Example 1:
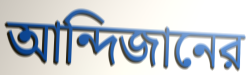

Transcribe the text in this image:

আন্দিজানের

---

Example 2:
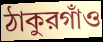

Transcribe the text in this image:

ঠাকুরগাঁও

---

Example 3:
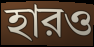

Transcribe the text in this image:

হারও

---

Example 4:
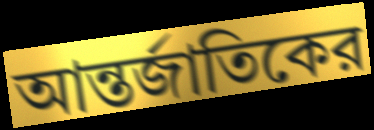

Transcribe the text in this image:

আন্তর্জাতিকের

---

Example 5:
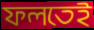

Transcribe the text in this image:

ফলতেই